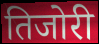
तिजोरी